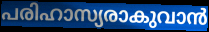
പരിഹാസ്യരാകുവാൻ